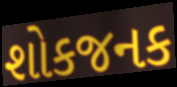
શોકજનક